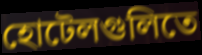
হোটেলগুলিতে